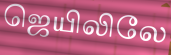
ஜெயிலிலே